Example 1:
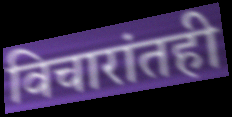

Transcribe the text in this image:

विचारांतही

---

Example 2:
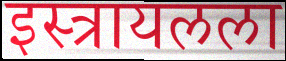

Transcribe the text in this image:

इस्त्रायलला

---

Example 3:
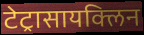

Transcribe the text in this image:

टेट्रासायक्लिन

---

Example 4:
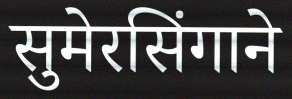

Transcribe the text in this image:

सुमेरसिंगाने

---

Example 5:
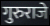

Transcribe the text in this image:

गुरुराजे